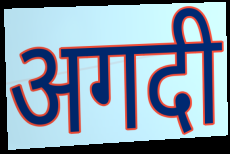
अगदी